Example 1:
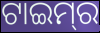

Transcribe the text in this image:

ଟାଇମ୍‌ର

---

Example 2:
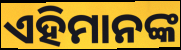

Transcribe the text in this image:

ଏହିମାନଙ୍କ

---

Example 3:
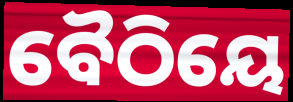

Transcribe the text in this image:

ବୈଠିୟେ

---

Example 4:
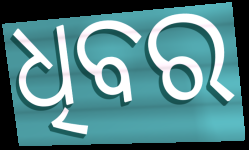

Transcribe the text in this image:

ଧିବର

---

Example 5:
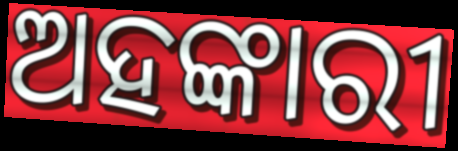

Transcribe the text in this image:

ଅହଙ୍କାରୀ